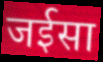
जईसा